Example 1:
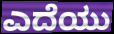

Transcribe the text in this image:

ಎದೆಯು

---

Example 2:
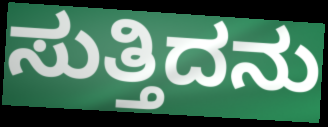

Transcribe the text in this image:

ಸುತ್ತಿದನು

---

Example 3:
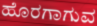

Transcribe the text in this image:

ಹೊರಗಾಗುವ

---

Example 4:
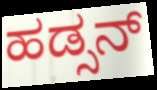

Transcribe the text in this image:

ಹಡ್ಸನ್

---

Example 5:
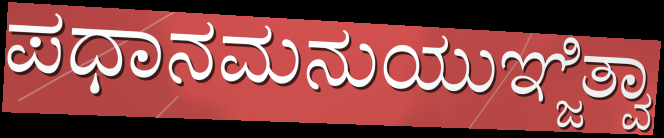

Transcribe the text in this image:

ಪಧಾನಮನುಯುಞ್ಜಿತ್ವಾ